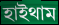
হাইথাম